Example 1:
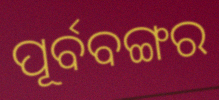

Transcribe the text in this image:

ପୂର୍ବବଙ୍ଗର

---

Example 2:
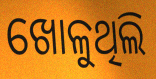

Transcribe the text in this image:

ଖୋଳୁଥିଲି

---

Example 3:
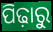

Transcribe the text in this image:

ପିଢ଼ାରୁ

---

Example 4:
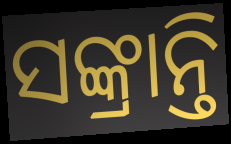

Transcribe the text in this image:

ସଙ୍କ୍ରାନ୍ତି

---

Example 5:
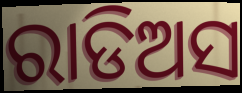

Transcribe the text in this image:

ରାଡିଅସ